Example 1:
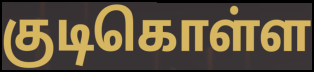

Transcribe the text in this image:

குடிகொள்ள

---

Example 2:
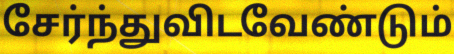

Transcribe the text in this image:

சேர்ந்துவிடவேண்டும்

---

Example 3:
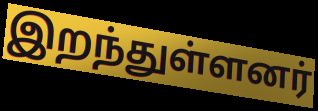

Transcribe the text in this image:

இறந்துள்ளனர்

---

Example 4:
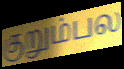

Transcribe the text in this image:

குறும்பல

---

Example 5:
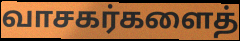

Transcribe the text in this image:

வாசகர்களைத்